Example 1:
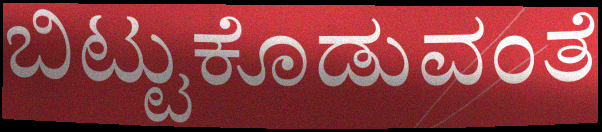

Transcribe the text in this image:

ಬಿಟ್ಟುಕೊಡುವಂತೆ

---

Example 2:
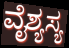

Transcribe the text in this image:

ವೈಶ್ಯಸ್ಯ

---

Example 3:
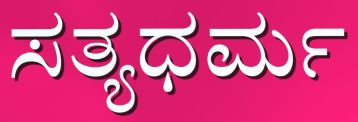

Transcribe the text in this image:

ಸತ್ಯಧರ್ಮ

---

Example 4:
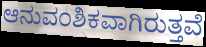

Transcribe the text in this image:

ಆನುವಂಶಿಕವಾಗಿರುತ್ತವೆ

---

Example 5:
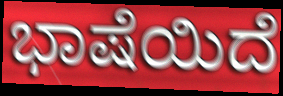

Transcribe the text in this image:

ಭಾಷೆಯಿದೆ